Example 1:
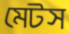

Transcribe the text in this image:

মেটস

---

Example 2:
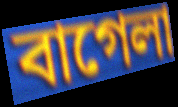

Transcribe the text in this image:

বাগেলা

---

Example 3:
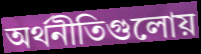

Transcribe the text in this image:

অর্থনীতিগুলোয়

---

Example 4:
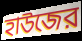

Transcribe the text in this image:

হাউজের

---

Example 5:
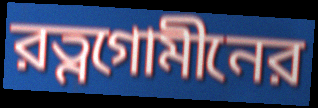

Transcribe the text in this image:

রত্নগোমীনের